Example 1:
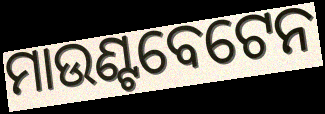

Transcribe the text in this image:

ମାଉଣ୍ଟବେଟେନ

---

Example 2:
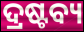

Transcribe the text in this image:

ଦ୍ରଷ୍ଟବ୍ୟ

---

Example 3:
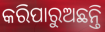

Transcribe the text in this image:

କରିପାରୁଅଛନ୍ତି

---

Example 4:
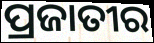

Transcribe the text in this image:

ପ୍ରଜାତୀର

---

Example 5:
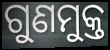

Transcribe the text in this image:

ଗୁଣମୁକ୍ତ